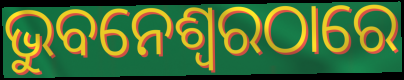
ଭୁବନେଶ୍ଵରଠାରେ